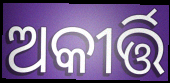
ଅକୀର୍ତ୍ତି